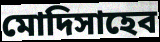
মোদিসাহেব